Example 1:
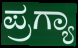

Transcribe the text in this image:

ಪ್ರಗ್ಯಾ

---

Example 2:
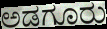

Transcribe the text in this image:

ಅಡಗೂರು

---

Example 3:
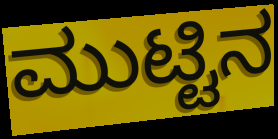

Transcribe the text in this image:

ಮುಟ್ಟಿನ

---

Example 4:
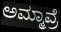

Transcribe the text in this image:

ಅಮ್ಮಾವ್ರೆ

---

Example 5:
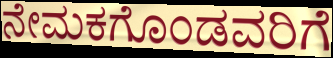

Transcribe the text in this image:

ನೇಮಕಗೊಂಡವರಿಗೆ